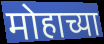
मोहाच्या